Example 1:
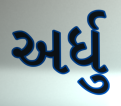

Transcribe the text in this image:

અર્ધુ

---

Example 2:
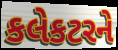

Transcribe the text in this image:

કલેકટરને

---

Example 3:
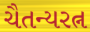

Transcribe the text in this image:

ચૈતન્યરત્ન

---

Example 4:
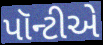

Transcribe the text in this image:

પૉન્ટીએ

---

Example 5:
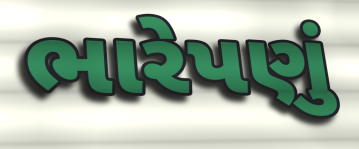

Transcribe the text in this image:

ભારેપણું